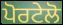
ਪੋਰਟੇਲੋ